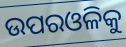
ଉପରଓଳିକୁ